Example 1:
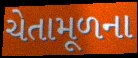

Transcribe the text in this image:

ચેતામૂળના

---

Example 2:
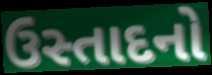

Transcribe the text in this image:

ઉસ્તાદનો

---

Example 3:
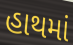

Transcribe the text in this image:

હાથમાં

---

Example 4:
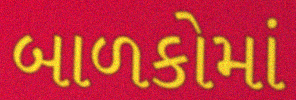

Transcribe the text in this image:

બાળકોમાં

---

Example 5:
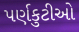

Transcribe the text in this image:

પર્ણકુટીઓ